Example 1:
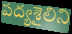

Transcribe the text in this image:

పద్యశైలిని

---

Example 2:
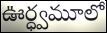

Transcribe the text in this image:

ఊర్ధ్వమూలో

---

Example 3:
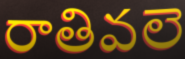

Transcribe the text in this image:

రాతివలె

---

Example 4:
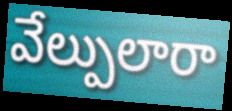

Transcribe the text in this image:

వేల్పులారా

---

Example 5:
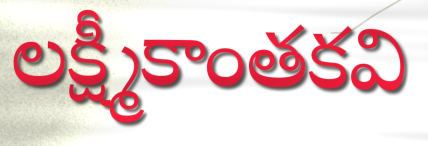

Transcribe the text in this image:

లక్ష్మీకాంతకవి